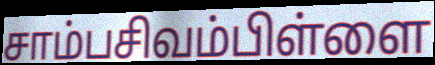
சாம்பசிவம்பிள்ளை